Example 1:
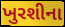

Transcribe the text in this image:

ખુરશીના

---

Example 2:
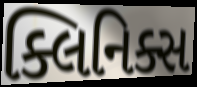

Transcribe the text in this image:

ક્લિનિક્સ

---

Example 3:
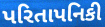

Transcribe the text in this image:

પરિતાપનિકી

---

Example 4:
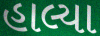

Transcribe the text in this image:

હાલ્યા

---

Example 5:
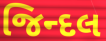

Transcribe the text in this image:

જિન્દલ